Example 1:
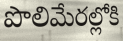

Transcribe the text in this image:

పొలిమేరల్లోకి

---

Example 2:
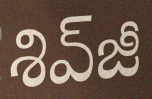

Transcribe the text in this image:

శివ్‌జీ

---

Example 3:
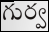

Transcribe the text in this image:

గుర్వ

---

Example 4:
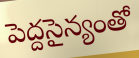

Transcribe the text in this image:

పెద్దసైన్యంతో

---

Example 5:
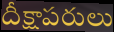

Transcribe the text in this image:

దీక్షాపరులు